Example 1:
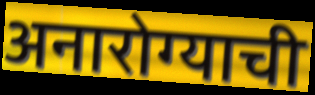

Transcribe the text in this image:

अनारोग्याची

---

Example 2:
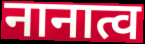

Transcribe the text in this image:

नानात्व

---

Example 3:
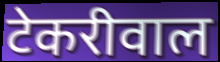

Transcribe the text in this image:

टेकरीवाल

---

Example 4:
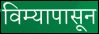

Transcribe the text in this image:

विम्यापासून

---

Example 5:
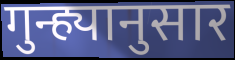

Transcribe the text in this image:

गुन्ह्यानुसार